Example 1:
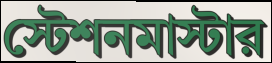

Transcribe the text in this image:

স্টেশনমাস্টার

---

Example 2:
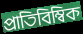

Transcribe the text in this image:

প্রাতিবিম্বিক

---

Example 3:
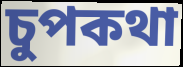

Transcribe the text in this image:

চুপকথা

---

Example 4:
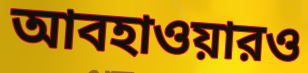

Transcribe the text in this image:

আবহাওয়ারও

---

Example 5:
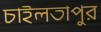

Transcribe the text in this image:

চাইলতাপুর